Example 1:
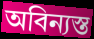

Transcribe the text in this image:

অবিন্যস্ত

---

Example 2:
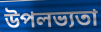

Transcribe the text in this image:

উপলভ্যতা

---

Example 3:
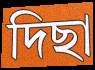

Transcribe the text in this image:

দিছা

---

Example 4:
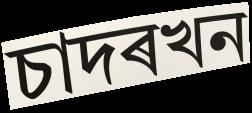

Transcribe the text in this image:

চাদৰখন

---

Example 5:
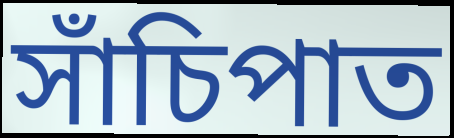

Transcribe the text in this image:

সাঁচিপাত